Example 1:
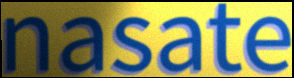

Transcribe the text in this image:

nasate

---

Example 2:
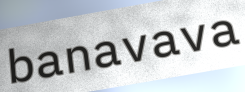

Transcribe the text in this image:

banavava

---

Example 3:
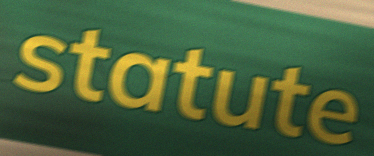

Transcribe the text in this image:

statute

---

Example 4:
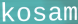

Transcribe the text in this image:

kosam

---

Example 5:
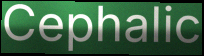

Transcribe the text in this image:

Cephalic